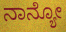
ನಾನ್ಯೋ